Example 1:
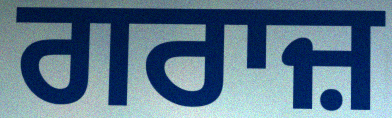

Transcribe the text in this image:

ਗਰਾਜ਼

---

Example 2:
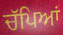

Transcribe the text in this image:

ਚੱਪਿਆਂ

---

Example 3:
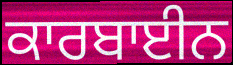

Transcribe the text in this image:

ਕਾਰਬਾਈਨ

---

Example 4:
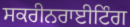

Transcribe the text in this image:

ਸਕਰੀਨਰਾਈਟਿੰਗ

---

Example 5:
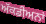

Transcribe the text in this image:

ਅੱਕਡੀਅਨਾਂ